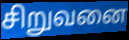
சிறுவனை